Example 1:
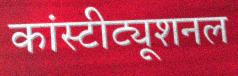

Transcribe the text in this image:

कांस्टीट्यूशनल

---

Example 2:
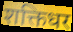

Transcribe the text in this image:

शक्तिधर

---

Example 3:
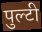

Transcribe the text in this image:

पुल्टी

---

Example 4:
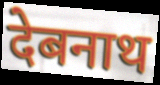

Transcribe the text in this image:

देबनाथ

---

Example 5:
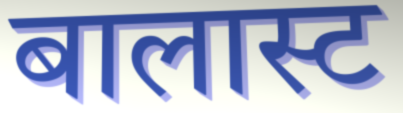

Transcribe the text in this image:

बालास्ट